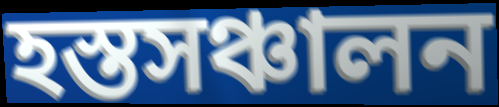
হস্তসঞ্চালন